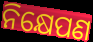
ନିକ୍ଷେପଣ